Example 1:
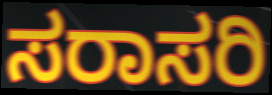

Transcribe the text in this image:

ಸರಾಸರಿ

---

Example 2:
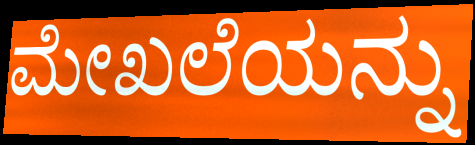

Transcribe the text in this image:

ಮೇಖಲೆಯನ್ನು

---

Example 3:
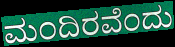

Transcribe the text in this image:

ಮಂದಿರವೆಂದು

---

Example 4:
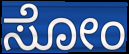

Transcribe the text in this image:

ಸೋಂ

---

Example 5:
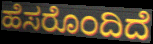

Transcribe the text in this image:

ಹೆಸರೊಂದಿದೆ